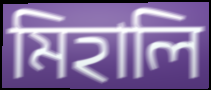
মিহালি